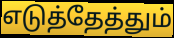
எடுத்தேத்தும்